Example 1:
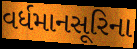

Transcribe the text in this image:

વર્ધમાનસૂરિના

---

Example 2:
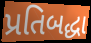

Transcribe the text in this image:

પ્રતિબદ્ધા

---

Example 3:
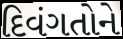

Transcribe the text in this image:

દિવંગતોને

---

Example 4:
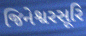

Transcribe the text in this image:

જિનેશ્વરસૂરિ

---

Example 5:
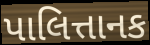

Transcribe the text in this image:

પાલિત્તાનક